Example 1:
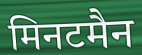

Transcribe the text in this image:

मिनटमैन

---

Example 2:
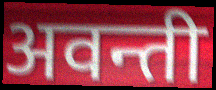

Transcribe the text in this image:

अवन्ती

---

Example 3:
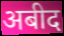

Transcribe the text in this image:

अबीद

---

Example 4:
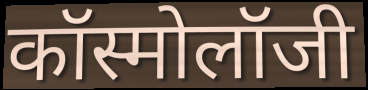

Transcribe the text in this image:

कॉस्मोलॉजी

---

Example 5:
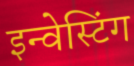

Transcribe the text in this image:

इन्वेस्टिंग